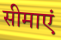
सीमाएं